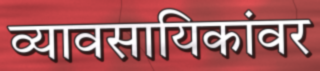
व्यावसायिकांवर